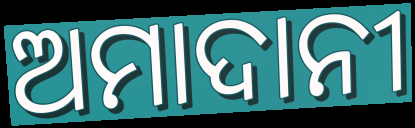
ଅମାଦାନୀ